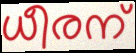
ധീരന്